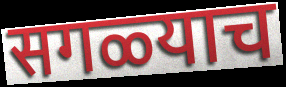
सगळ्याच